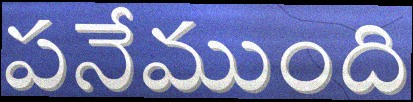
పనేముంది